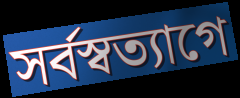
সর্বস্বত্যাগে